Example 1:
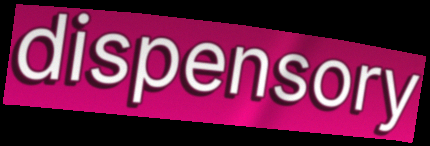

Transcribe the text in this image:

dispensory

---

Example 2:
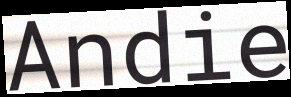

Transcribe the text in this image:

Andie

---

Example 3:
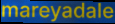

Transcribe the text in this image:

mareyadale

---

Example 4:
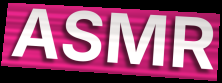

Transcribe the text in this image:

ASMR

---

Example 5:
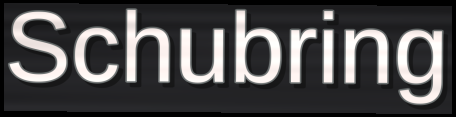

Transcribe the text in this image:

Schubring